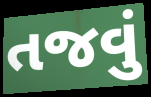
તજવું